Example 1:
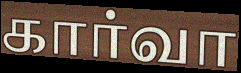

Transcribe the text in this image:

கார்வா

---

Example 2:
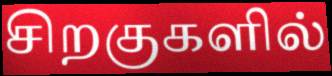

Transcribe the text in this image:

சிறகுகளில்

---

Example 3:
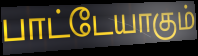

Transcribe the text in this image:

பாட்டேயாகும்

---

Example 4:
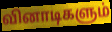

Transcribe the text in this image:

வினாடிகளும்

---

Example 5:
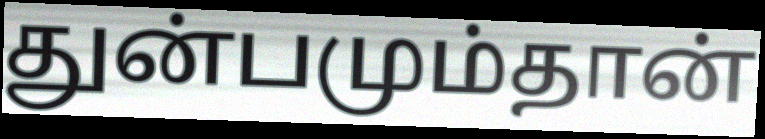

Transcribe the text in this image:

துன்பமும்தான்